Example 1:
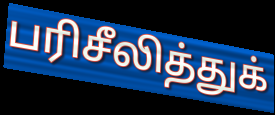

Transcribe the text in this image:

பரிசீலித்துக்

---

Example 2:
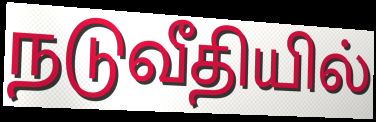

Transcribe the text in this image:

நடுவீதியில்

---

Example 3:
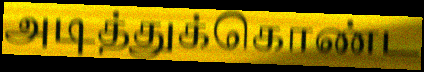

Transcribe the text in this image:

அடித்துக்கொண்ட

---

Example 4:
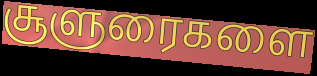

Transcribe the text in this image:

சூளுரைகளை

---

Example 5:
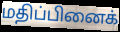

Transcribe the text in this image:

மதிப்பினைக்